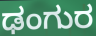
ಢಂಗುರ